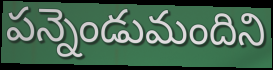
పన్నెండుమందిని